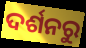
ଦର୍ଶନରୁ